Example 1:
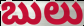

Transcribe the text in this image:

బులు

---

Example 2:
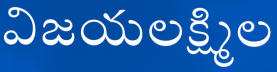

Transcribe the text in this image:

విజయలక్ష్మిల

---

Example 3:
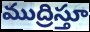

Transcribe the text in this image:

ముద్రిస్తూ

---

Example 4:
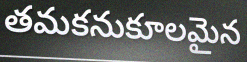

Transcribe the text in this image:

తమకనుకూలమైన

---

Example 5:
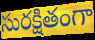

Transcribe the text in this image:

సురక్షితంగా